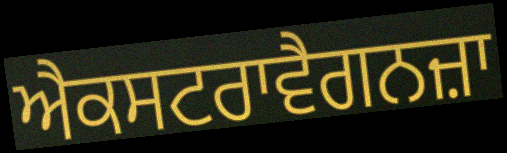
ਐਕਸਟਰਾਵੈਗਨਜ਼ਾ